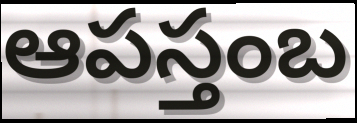
ఆపస్తంబ